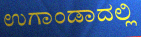
ಉಗಾಂಡಾದಲ್ಲಿ